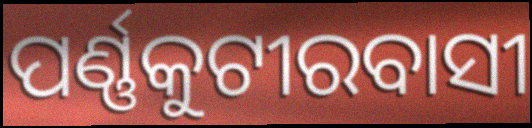
ପର୍ଣ୍ଣକୁଟୀରବାସୀ